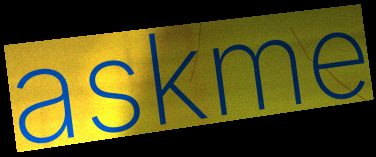
askme